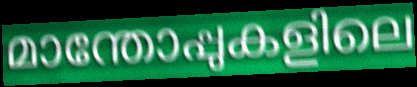
മാന്തോപ്പുകളിലെ